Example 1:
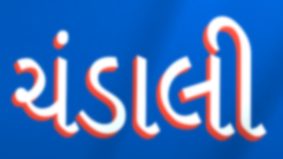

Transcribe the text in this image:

ચંડાલી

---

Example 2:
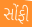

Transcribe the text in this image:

સોંફી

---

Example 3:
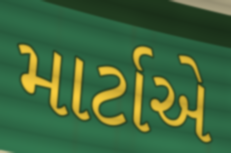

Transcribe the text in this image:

માર્ટાએ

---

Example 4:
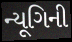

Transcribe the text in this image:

ન્યૂગિની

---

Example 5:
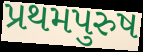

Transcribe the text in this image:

પ્રથમપુરુષ